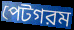
পেটগরম